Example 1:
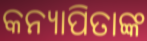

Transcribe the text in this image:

କନ୍ୟାପିତାଙ୍କ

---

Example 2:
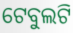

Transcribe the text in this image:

ଟେବୁଲଟି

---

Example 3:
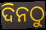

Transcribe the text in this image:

ଦିନଠୁ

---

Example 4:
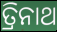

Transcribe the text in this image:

ତ୍ରିନାଥ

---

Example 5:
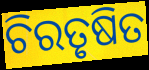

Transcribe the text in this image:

ଚିରତୃଷିତ